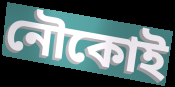
নৌকোই